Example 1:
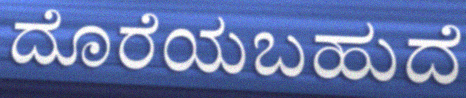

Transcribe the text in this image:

ದೊರೆಯಬಹುದೆ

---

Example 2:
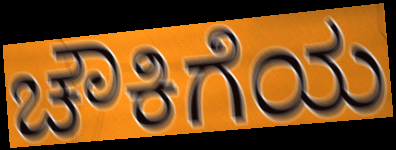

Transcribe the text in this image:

ಚೌಕಿಗೆಯ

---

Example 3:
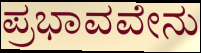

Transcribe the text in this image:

ಪ್ರಭಾವವೇನು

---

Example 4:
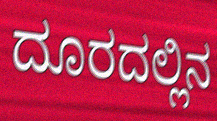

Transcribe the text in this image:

ದೂರದಲ್ಲಿನ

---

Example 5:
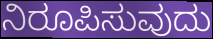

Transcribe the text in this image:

ನಿರೂಪಿಸುವುದು